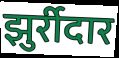
झुर्रीदार